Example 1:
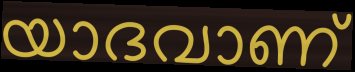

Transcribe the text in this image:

യാദവാണ്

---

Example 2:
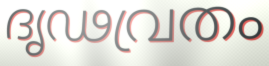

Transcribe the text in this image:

ദൃഢവ്രതം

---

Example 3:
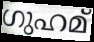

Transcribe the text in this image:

ഗുഹമ്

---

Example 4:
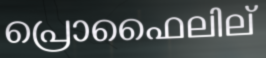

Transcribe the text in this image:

പ്രൊഫൈലില്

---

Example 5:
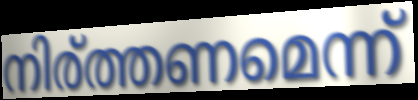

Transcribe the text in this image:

നിര്ത്തണമെന്ന്